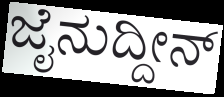
ಜೈನುದ್ದೀನ್